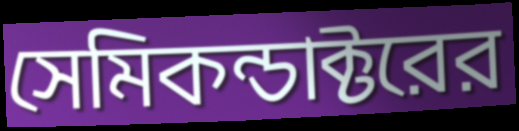
সেমিকন্ডাক্টরের